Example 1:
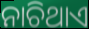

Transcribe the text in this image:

ନାଚିଥାଏ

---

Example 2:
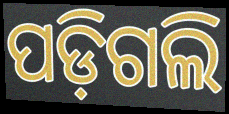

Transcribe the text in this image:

ପଡ଼ିଗଲି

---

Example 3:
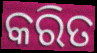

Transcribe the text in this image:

କରିତ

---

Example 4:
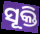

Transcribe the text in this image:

ସୂକ୍ତି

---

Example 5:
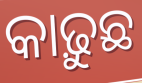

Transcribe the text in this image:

କାଢ଼ୁଛ